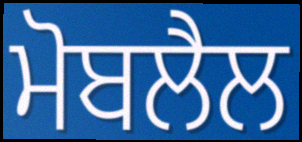
ਮੋਬਲੈਲ